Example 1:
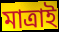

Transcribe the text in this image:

মাত্ৰাই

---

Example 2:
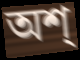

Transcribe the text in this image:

অশ্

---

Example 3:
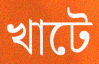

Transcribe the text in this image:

খাটে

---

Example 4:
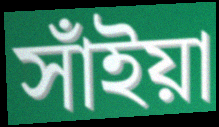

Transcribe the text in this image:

সাঁইয়া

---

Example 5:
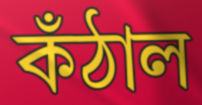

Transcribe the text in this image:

কঁঠাল